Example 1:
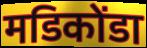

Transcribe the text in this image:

मडिकोंडा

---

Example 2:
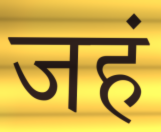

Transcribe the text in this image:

जहं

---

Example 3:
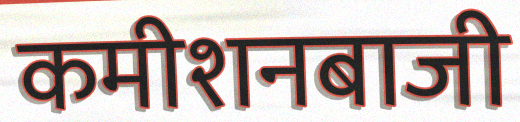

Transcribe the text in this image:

कमीशनबाजी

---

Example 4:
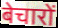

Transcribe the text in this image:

बेचारों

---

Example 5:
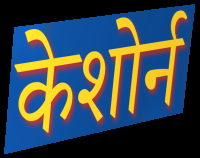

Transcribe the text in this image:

केशोर्न